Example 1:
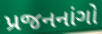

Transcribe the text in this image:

પ્રજનનાંગો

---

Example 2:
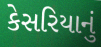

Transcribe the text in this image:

કેસરિયાનું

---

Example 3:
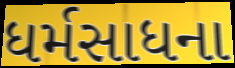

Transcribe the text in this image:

ધર્મસાધના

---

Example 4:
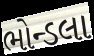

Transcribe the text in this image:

ભોન્ડલા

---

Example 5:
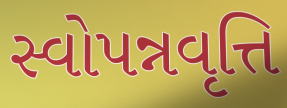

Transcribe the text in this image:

સ્વોપન્નવૃત્તિ